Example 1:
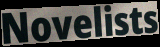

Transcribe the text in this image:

Novelists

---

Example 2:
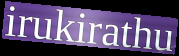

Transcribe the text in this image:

irukirathu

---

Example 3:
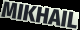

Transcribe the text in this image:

MIKHAIL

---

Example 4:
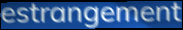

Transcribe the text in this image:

estrangement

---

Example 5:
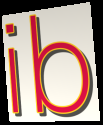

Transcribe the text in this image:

ib